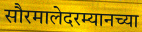
सौरमालेदरम्यानच्या